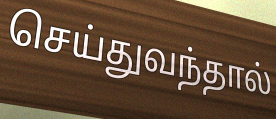
செய்துவந்தால்